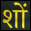
शों